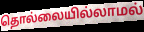
தொல்லையில்லாமல்